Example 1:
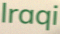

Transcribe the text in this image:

Iraqi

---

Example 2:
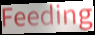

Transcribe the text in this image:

Feeding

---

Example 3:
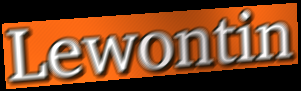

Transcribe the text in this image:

Lewontin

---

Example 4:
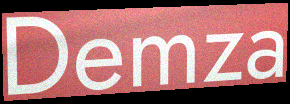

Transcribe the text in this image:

Demza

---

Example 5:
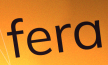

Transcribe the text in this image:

fera